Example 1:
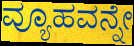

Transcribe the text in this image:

ವ್ಯೂಹವನ್ನೇ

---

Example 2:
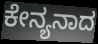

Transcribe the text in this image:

ಕೇನ್ಯನಾದ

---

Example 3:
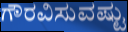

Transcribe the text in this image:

ಗೌರವಿಸುವಷ್ಟು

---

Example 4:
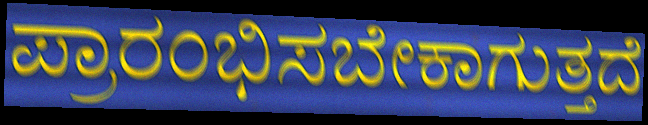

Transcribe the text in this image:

ಪ್ರಾರಂಭಿಸಬೇಕಾಗುತ್ತದೆ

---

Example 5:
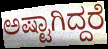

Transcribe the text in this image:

ಅಷ್ಟಾಗಿದ್ದರೆ